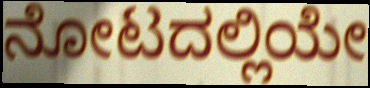
ನೋಟದಲ್ಲಿಯೇ